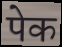
पेक